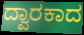
ದ್ವಾರಕಾದ